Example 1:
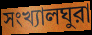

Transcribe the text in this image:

সংখ্যালঘুরা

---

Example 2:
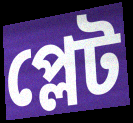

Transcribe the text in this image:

প্লেট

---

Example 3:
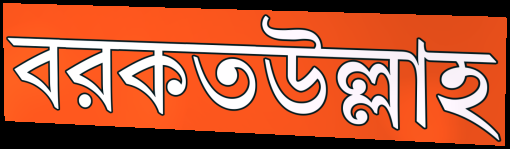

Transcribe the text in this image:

বরকতউল্লাহ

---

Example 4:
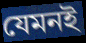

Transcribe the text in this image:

যেমনই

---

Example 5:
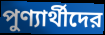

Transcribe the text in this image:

পুণ্যার্থীদের